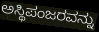
ಅಸ್ಥಿಪಂಜರವನ್ನು